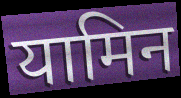
यामिन